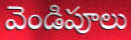
వెండిపూలు